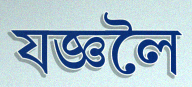
যজ্ঞলৈ